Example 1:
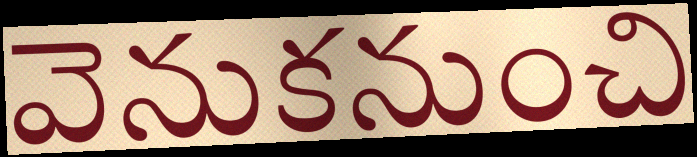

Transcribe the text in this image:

వెనుకనుంచి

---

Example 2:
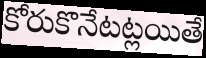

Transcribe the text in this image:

కోరుకొనేటట్లయితే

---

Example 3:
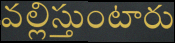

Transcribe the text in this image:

వల్లిస్తుంటారు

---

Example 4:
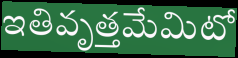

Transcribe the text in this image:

ఇతివృత్తమేమిటో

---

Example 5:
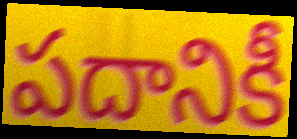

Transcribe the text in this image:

పదానికీ